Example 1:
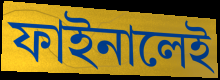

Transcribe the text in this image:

ফাইনালেই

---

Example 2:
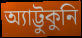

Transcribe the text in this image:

অ্যাট্টুকুনি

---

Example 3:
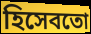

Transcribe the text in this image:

হিসেবতো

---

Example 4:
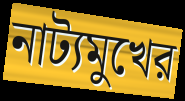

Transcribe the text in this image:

নাট্যমুখের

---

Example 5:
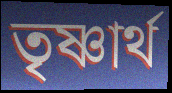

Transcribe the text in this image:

তৃষ্ণার্থ